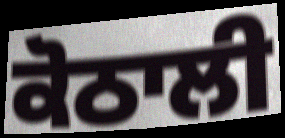
ਕੋਠਾਲੀ